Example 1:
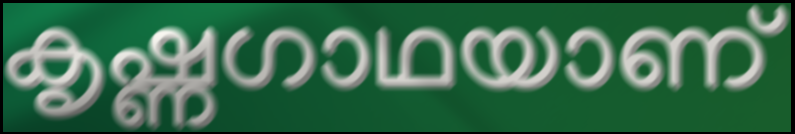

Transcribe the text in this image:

കൃഷ്ണഗാഥയാണ്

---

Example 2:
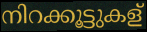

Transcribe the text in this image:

നിറക്കൂട്ടുകള്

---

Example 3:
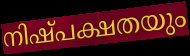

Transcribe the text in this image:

നിഷ്പക്ഷതയും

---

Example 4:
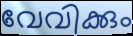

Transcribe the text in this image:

വേവിക്കും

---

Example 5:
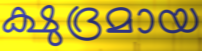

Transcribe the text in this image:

ക്ഷുദ്രമായ